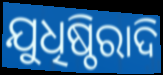
ଯୁଧିଷ୍ଠିରାଦି